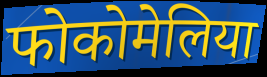
फोकोमेलिया